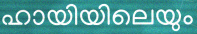
ഹായിയിലെയും